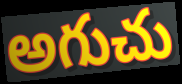
అగుచు